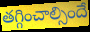
తగ్గించాల్సిందే